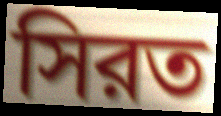
সিরত